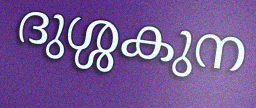
ദുശ്ശകുന